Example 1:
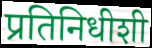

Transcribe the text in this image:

प्रतिनिधीशी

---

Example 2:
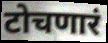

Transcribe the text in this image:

टोचणारं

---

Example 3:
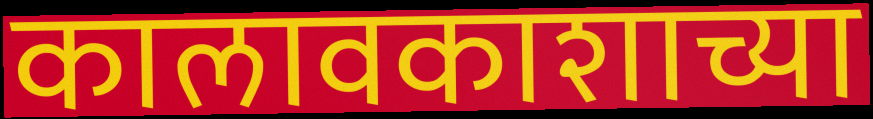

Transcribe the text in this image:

कालावकाशाच्या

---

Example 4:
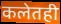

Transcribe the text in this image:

कलेतही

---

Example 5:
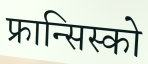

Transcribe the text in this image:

फ्रान्सिस्को